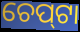
ଚେପ୍‍ଟା